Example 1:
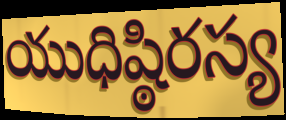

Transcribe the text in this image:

యుధిష్ఠిరస్య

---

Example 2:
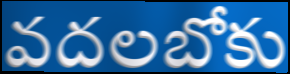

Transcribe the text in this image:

వదలబోకు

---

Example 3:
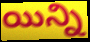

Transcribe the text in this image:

యిన్ని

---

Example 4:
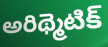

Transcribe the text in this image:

అరిథ్మెటిక్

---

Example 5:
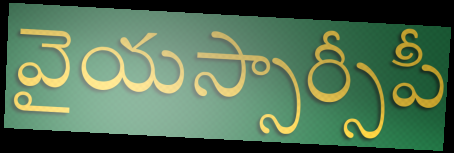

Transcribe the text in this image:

వైయస్సార్సీపీ